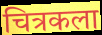
चित्रकला